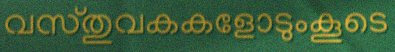
വസ്തുവകകളോടുംകൂടെ